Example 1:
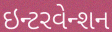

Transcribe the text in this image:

ઇન્ટરવેન્શન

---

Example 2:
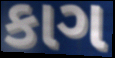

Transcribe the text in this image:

કાગ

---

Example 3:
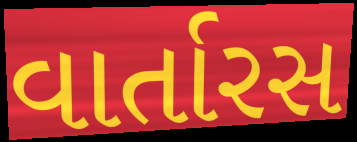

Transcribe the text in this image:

વાર્તારસ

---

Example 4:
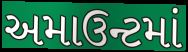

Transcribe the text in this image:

અમાઉન્ટમાં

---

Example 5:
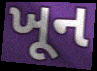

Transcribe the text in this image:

ખૂન